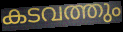
കടവത്തും